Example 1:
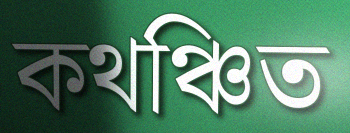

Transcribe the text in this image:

কথঞ্চিত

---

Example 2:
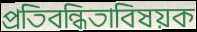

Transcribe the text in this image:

প্রতিবন্ধিতাবিষয়ক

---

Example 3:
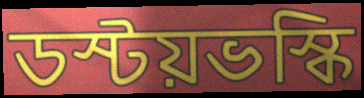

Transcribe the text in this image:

ডস্টয়ভস্কি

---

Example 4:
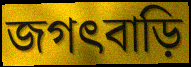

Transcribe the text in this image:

জগৎবাড়ি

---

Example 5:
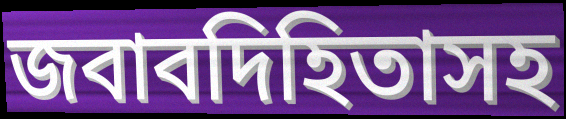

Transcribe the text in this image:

জবাবদিহিতাসহ